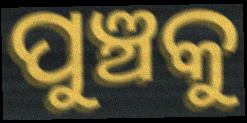
ପୁଞ୍ଚକୁ